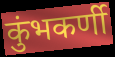
कुंभकर्णी